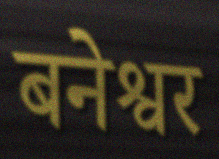
बनेश्वर